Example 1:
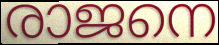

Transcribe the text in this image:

രാജനെ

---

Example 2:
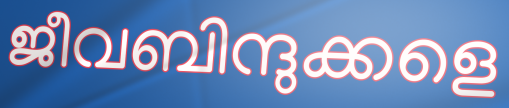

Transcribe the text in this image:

ജീവബിന്ദുക്കളെ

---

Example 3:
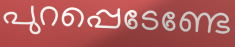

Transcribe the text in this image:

പുറപ്പെടേണ്ടേ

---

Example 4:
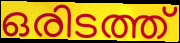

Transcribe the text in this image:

ഒരിടത്ത്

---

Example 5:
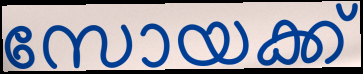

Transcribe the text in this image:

സോയക്ക്